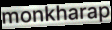
monkharap